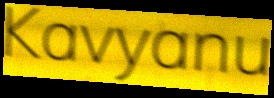
Kavyanu